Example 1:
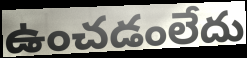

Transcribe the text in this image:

ఉంచడంలేదు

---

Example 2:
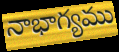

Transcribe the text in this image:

నాభాగ్యము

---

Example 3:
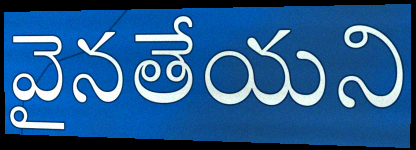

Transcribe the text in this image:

వైనతేయని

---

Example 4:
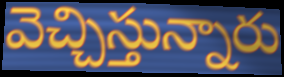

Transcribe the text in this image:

వెచ్చిస్తున్నారు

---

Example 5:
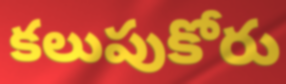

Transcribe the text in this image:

కలుపుకోరు